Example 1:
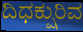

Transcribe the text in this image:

ದಿಧಕ್ಷುರಿವ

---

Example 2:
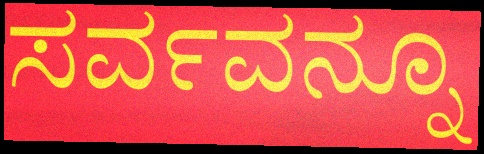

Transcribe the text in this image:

ಸರ್ವವನ್ನೂ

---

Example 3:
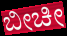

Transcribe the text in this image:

ಬೀಚೀ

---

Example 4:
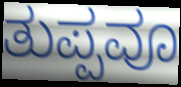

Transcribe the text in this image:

ತುಪ್ಪವೂ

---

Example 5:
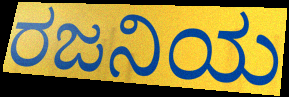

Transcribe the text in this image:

ರಜನಿಯ